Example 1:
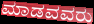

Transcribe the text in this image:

ಮಾಡವವರು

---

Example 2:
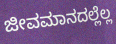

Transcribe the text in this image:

ಜೀವಮಾನದಲ್ಲೆಲ್ಲ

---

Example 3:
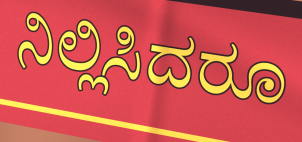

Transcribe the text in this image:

ನಿಲ್ಲಿಸಿದರೂ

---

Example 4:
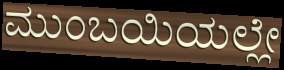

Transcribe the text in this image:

ಮುಂಬಯಿಯಲ್ಲೇ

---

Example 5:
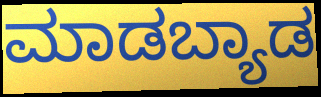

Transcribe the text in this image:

ಮಾಡಬ್ಯಾಡ